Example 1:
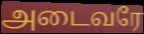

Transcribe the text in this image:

அடைவரே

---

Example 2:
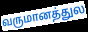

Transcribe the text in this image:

வருமானத்துல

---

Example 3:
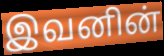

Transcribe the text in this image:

இவனின்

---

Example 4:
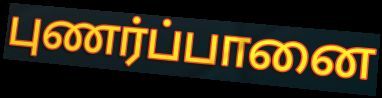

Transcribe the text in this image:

புணர்ப்பானை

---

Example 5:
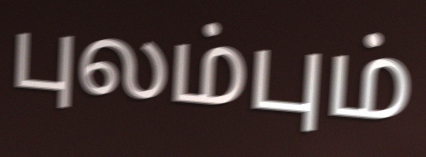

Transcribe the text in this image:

புலம்பும்